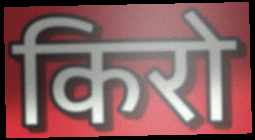
किरो